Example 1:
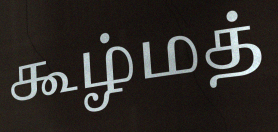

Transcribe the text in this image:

கூழ்மத்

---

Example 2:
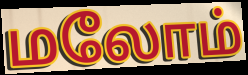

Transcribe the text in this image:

மலோம்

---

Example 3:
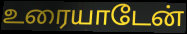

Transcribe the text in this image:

உரையாடேன்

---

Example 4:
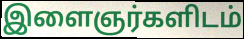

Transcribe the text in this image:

இளைஞர்களிடம்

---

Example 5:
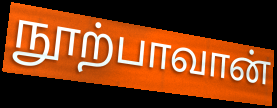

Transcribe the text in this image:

நூற்பாவான்